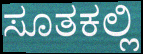
ಸೂತಕಲ್ಲಿ